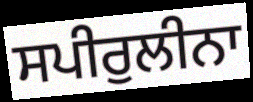
ਸਪੀਰੁਲੀਨਾ